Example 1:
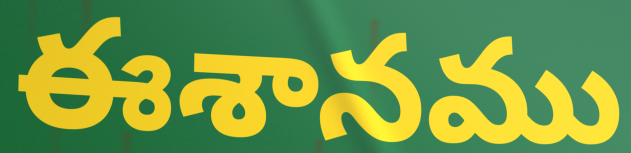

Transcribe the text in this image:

ఈశానము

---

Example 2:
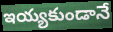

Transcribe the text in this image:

ఇయ్యకుండానే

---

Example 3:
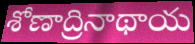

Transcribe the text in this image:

శోణాద్రినాథాయ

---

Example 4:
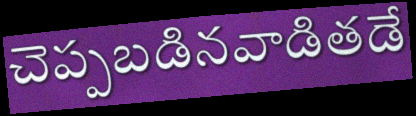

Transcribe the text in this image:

చెప్పబడినవాడితడే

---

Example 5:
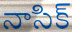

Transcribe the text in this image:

నాసిక్